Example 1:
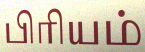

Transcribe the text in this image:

பிரியம்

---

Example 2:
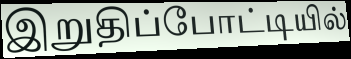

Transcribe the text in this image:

இறுதிப்போட்டியில்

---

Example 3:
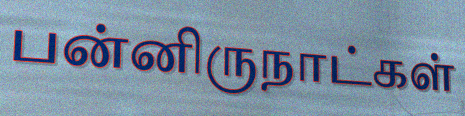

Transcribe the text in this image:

பன்னிருநாட்கள்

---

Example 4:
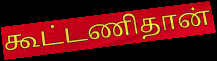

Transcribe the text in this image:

கூட்டணிதான்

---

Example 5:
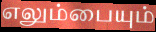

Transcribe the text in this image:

எலும்பையும்